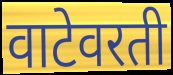
वाटेवरती